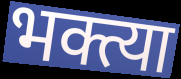
भक्त्या